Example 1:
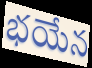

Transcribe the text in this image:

భయేన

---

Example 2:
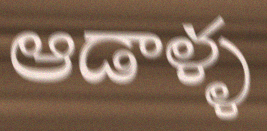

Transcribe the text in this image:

ఆడాళ్ళ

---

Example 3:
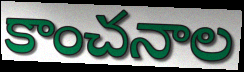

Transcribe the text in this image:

కాంచనాల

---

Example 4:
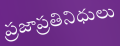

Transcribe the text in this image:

ప్రజాప్రతినిధులు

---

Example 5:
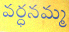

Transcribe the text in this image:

వర్ధనమ్మ